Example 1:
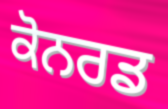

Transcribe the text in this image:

ਕੋਨਰਡ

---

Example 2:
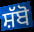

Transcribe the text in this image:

ਸ਼ੱਬੋ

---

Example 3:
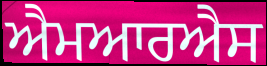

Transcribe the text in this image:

ਐਮਆਰਐਸ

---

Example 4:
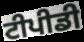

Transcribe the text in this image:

ਟੀਪੀਡੀ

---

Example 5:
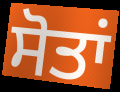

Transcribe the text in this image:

ਸੋਤਾਂ